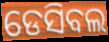
ଡେସିବଲ